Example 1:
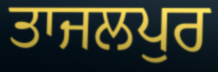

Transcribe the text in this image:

ਤਾਜਲਪੁਰ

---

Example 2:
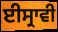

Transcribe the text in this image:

ਈਸ੍ਰਾਵੀ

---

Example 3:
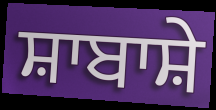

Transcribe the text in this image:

ਸ਼ਾਬਾਸ਼ੇ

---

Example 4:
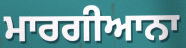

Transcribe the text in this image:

ਮਾਰਗੀਆਨਾ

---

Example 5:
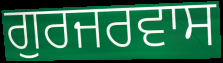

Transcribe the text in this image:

ਗੁਰਜਰਵਾਸ